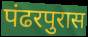
पंढरपुरास